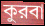
কুরবা